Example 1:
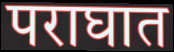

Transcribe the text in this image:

पराघात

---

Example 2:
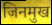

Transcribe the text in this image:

जिनमुख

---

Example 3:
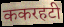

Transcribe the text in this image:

ककरहटी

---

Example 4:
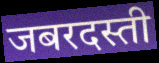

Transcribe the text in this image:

जबरदस्ती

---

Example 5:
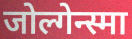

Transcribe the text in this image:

जोल्गेन्स्मा